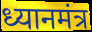
ध्यानमंत्र